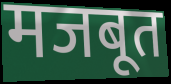
मजबूत